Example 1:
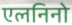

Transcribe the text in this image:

एलनिनो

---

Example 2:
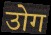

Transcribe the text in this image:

उोग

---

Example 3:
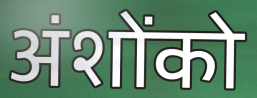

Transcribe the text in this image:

अंशोंको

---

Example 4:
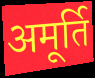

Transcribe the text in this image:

अमूर्ति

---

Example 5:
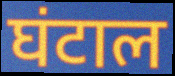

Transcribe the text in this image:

घंटाल